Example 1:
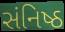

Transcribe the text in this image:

સંનિષ્ઠ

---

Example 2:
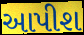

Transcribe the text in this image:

આપીશ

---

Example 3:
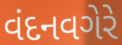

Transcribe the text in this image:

વંદનવગેરે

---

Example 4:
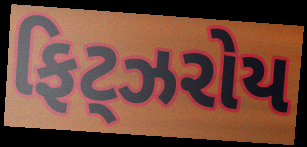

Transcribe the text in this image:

ફિટ્ઝરોય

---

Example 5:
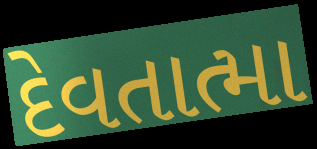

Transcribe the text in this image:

દેવતાત્મા